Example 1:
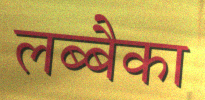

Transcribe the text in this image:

लब्बैका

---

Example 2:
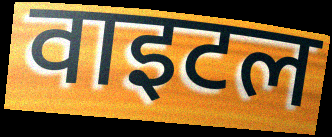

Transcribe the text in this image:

वाइटल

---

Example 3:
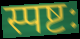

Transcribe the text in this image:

स्पष्टः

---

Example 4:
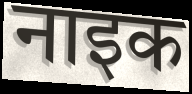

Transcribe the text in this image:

नाइक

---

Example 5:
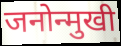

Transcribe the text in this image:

जनोन्मुखी